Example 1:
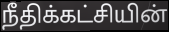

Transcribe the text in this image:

நீதிக்கட்சியின்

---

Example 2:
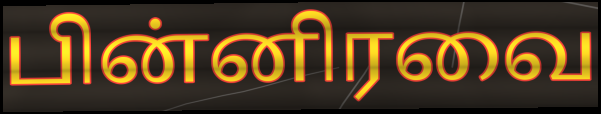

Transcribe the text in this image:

பின்னிரவை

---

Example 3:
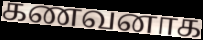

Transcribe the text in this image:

கணவனாக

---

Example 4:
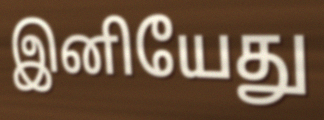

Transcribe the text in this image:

இனியேது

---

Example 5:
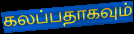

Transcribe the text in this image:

கலப்பதாகவும்